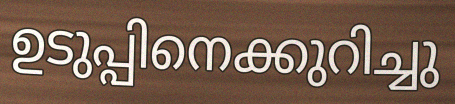
ഉടുപ്പിനെക്കുറിച്ചു